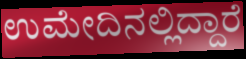
ಉಮೇದಿನಲ್ಲಿದ್ದಾರೆ